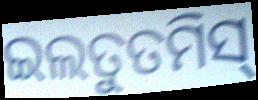
ଇଲତୁତମିସ୍